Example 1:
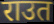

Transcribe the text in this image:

राउत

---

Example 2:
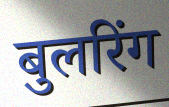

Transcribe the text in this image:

बुलरिंग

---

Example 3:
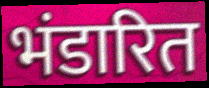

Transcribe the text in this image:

भंडारित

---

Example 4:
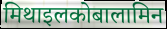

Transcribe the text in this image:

मिथाइलकोबालामिन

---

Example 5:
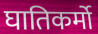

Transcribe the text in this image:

घातिकर्मो